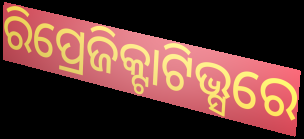
ରିପ୍ରେଜିକ୍ଟାଟିଭ୍ସରେ